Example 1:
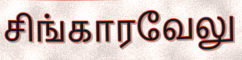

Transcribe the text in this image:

சிங்காரவேலு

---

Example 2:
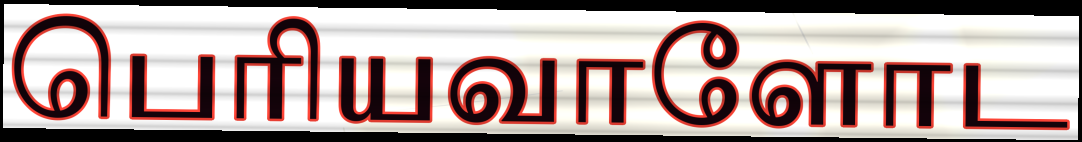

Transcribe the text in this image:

பெரியவாளோட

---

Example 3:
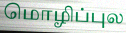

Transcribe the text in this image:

மொழிப்புல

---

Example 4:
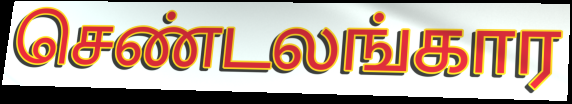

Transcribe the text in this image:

செண்டலங்கார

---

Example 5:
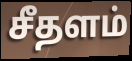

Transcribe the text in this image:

சீதளம்